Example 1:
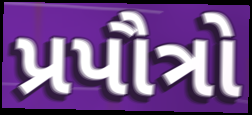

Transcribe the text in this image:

પ્રપૌત્રો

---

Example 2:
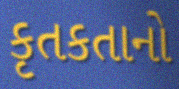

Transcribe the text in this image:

કૃતકતાનો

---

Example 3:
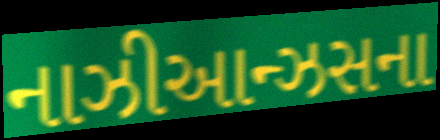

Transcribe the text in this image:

નાઝીઆન્ઝસના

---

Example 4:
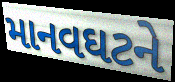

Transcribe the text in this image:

માનવઘટને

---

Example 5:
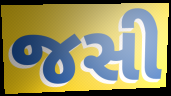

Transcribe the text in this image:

જસી